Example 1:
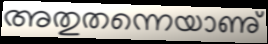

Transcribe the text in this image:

അതുതന്നെയാണു്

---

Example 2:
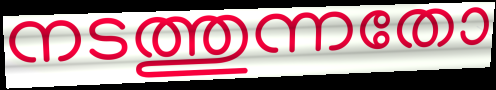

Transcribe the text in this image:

നടത്തുന്നതോ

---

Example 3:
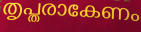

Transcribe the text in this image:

തൃപ്തരാകേണം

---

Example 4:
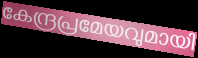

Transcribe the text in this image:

കേന്ദ്രപ്രമേയവുമായി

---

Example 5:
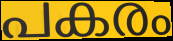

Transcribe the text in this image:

പകരം